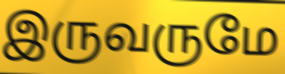
இருவருமே